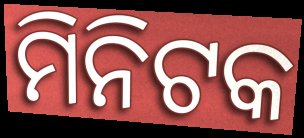
ମିନିଟକ